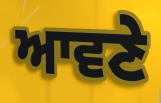
ਆਵਣੇ